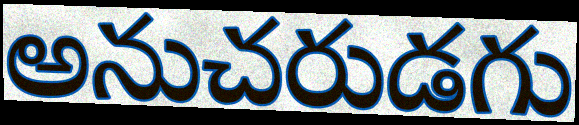
అనుచరుడగు